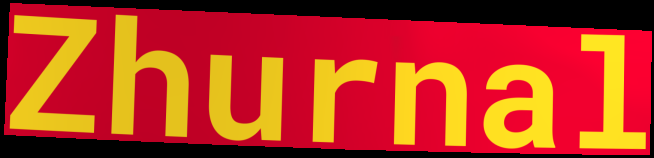
Zhurnal